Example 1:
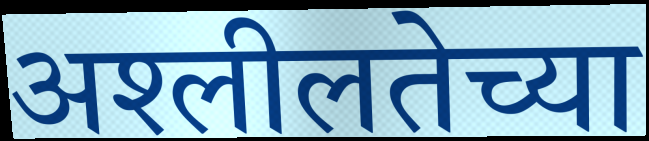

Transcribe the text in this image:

अश्‍लीलतेच्या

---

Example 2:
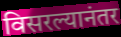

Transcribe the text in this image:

विसरल्यानंतर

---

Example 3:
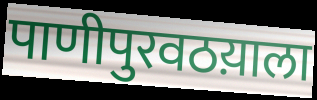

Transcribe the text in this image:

पाणीपुरवठय़ाला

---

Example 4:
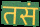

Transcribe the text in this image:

तसं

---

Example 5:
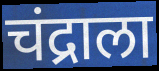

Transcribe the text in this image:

चंद्राला